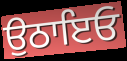
ਉਠਾਇਓ